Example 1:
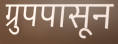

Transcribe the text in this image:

ग्रुपपासून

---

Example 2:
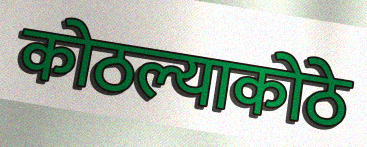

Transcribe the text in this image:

कोठल्याकोठे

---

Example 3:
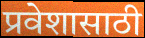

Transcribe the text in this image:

प्रवेशासाठी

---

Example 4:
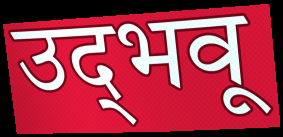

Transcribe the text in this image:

उद्‌भवू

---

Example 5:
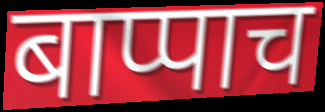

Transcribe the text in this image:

बाप्पाच